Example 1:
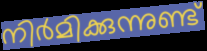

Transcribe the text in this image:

നിർമിക്കുന്നുണ്ട്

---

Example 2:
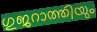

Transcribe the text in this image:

ഗുജറാത്തിയും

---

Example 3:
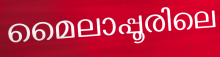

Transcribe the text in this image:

മൈലാപ്പൂരിലെ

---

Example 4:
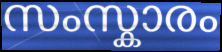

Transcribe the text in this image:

സംസ്കാരം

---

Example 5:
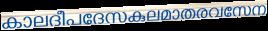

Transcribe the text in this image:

കാലദീപദേസകുലമാതരവസേന